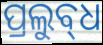
ପ୍ରଲୁବ୍‌ଧ